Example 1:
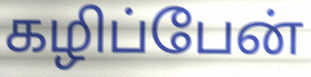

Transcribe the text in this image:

கழிப்பேன்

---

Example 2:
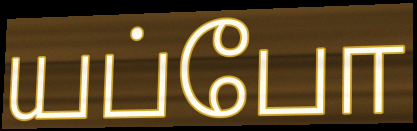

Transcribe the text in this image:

யப்போ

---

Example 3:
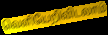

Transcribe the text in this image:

வெளியேறிவிடலாம்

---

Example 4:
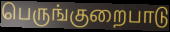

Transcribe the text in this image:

பெருங்குறைபாடு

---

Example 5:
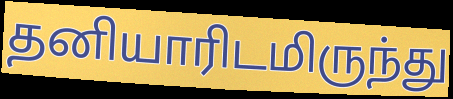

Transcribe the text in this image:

தனியாரிடமிருந்து